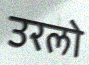
उरलो